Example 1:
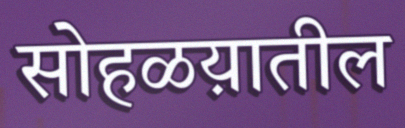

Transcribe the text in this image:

सोहळय़ातील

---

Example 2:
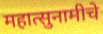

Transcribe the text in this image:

महात्सुनामीचे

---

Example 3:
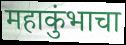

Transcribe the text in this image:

महाकुंभाचा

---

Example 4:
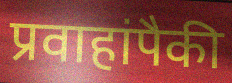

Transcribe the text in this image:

प्रवाहांपैकी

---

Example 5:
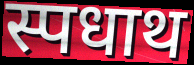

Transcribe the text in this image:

स्पधाथ